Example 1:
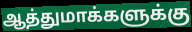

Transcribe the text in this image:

ஆத்துமாக்களுக்கு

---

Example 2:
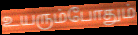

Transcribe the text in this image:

உயரும்போதும்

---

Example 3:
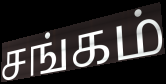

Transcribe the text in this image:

சங்கம்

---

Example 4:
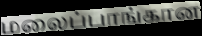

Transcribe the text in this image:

மலைப்பாங்கான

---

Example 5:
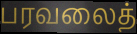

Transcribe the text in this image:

பரவலைத்